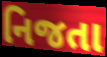
નિજતા